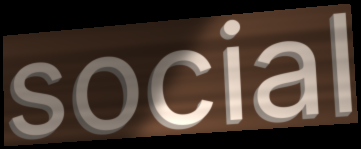
social